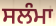
ਸਲੰਮਾ